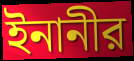
ইনানীর